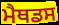
ਮੈਥਡਸ